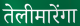
तेलीमारेंगा